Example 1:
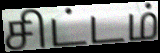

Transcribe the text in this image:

சிட்டம்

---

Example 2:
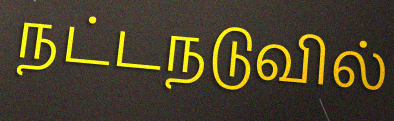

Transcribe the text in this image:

நட்டநடுவில்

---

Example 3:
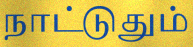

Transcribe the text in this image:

நாட்டுதும்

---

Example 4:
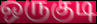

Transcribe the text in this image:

ஒருகுடி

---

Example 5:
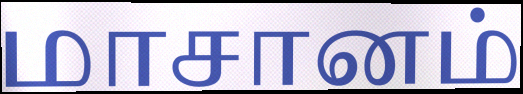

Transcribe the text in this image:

மாசானம்